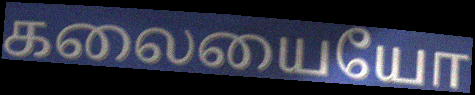
கலையையோ